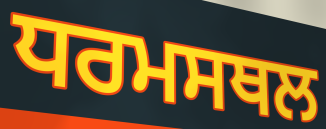
ਧਰਮਸਥਲ